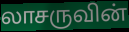
லாசருவின்